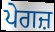
ਪੇਗਜ਼